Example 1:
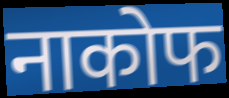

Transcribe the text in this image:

नाकोफ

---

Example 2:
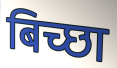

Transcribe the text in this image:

बिच्छा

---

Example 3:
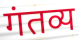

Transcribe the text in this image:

गंतव्य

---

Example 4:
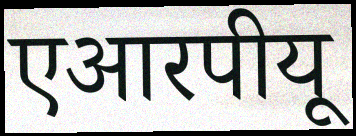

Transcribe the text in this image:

एआरपीयू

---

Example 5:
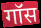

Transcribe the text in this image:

गॉस